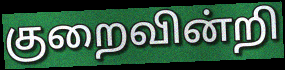
குறைவின்றி